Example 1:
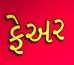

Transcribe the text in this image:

ફેઅર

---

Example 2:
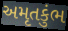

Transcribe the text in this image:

અમૃતકુંભ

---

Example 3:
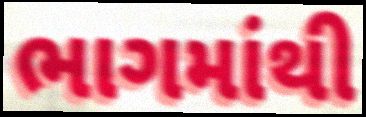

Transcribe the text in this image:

ભાગમાંથી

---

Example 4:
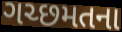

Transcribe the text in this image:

ગચ્છમતના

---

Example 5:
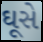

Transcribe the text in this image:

ઘૂસે